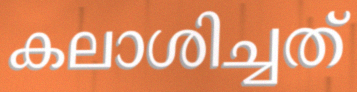
കലാശിച്ചത്